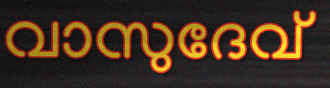
വാസുദേവ്